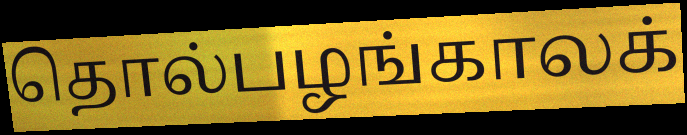
தொல்பழங்காலக்